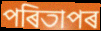
পৰিতাপৰ